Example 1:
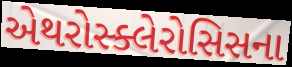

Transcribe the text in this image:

એથરોસ્ક્લેરોસિસના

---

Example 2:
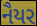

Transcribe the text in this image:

નૈયર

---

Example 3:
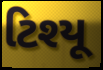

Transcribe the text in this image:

ટિશ્યૂ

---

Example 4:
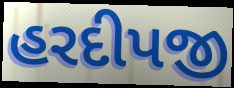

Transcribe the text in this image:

હરદીપજી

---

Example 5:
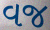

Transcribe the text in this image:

વજ